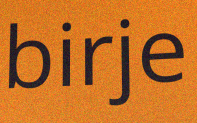
birje